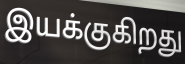
இயக்குகிறது